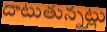
దాటుతున్నట్లు